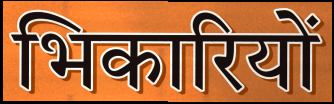
भिकारियों